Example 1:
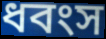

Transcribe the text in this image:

ধবংস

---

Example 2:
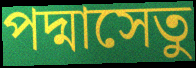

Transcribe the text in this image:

পদ্মাসেতু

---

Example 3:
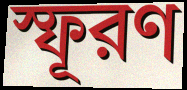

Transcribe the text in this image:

স্ফূরণ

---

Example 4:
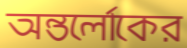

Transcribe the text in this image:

অন্তর্লোকের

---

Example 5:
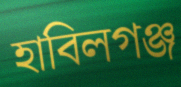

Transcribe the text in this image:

হাবিলগঞ্জ